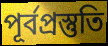
পূর্বপ্রস্তুতি